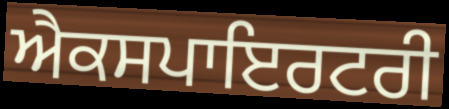
ਐਕਸਪਾਇਰਟਰੀ